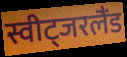
स्वीट्जरलैंड